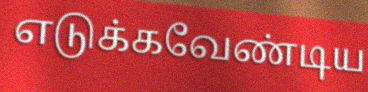
எடுக்கவேண்டிய